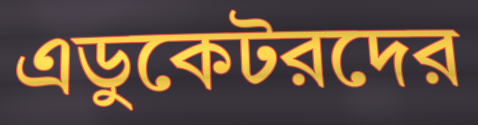
এডুকেটরদের